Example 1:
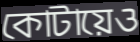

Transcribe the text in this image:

কোটায়েও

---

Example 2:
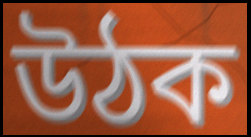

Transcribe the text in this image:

উঠক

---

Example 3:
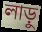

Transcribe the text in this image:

লাড়ু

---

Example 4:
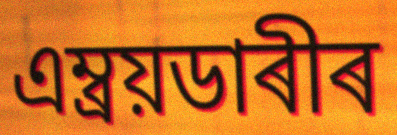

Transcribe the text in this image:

এম্ব্ৰয়ডাৰীৰ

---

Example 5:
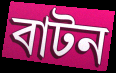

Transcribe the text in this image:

বাটন